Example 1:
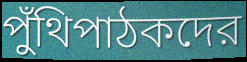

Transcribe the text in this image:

পুঁথিপাঠকদের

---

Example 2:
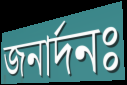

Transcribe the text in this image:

জনার্দনঃ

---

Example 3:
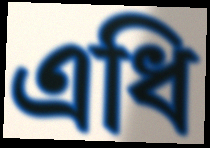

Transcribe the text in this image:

এধি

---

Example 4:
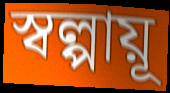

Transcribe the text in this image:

স্বল্পায়ূ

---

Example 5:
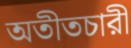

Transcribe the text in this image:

অতীতচারী